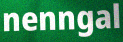
nenngal